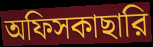
অফিসকাছারি